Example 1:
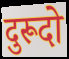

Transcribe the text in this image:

दुरूदो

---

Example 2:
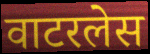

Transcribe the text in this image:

वाटरलेस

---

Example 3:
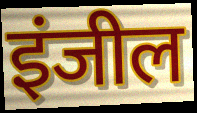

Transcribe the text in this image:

इंजील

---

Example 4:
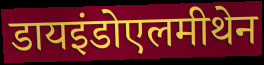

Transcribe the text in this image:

डायइंडोएलमीथेन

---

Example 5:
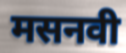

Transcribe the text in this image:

मसनवी